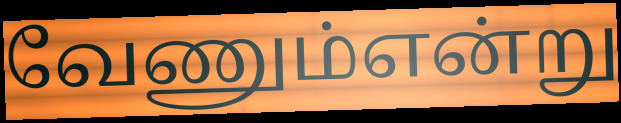
வேணும்என்று